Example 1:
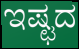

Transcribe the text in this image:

ಇಷ್ಟದ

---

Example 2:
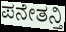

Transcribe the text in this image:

ಪನೇತನ್ತಿ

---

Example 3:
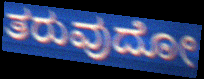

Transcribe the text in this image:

ತರುವುದೋ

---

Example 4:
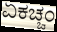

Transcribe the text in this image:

ಏಕಚ್ಚಂ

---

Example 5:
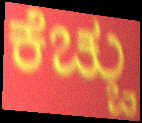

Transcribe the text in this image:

ಕೆಚ್ಚು